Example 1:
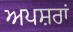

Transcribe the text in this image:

ਅਪਸ਼ਰਾਂ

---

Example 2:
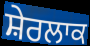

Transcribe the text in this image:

ਸ਼ੇਰਲਾਕ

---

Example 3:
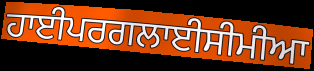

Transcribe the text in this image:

ਹਾਈਪਰਗਲਾਈਸੀਮੀਆ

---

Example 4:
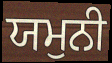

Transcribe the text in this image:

ਯਮੁਨੀ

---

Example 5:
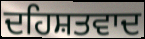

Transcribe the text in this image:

ਦਹਿਸ਼ਤਵਾਦ